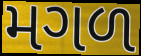
મગળ